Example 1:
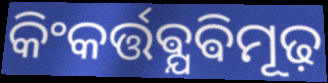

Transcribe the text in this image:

କିଂକର୍ତ୍ତଵ୍ଯଵିମୂଢ଼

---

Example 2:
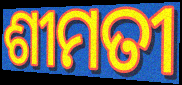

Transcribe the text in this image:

ଶୀମତୀ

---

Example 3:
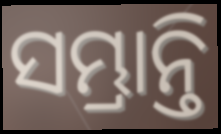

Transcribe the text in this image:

ସମ୍ଭ୍ରାନ୍ତି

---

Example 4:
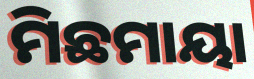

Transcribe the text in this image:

ମିଛମାୟା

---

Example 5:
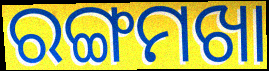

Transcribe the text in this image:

ରଙ୍ଗମଖା